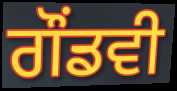
ਗੌਂਡਵੀ